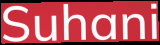
Suhani